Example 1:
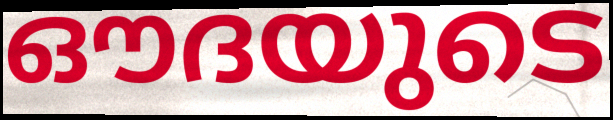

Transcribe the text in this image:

ഔദയുടെ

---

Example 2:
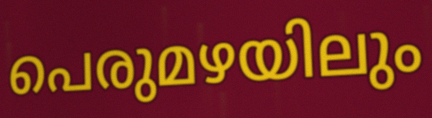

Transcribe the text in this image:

പെരുമഴയിലും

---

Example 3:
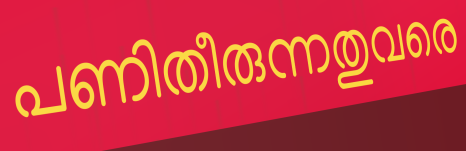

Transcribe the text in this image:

പണിതീരുന്നതുവരെ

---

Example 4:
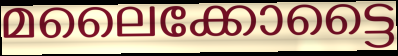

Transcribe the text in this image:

മലൈക്കോട്ടൈ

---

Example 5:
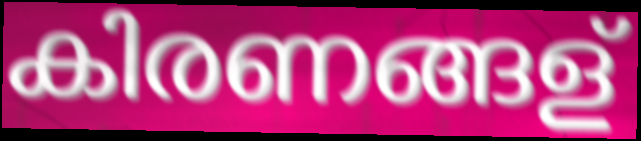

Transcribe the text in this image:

കിരണങ്ങള്